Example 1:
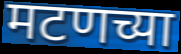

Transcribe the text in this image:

मटणच्या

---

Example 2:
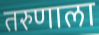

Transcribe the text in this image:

तरुणाला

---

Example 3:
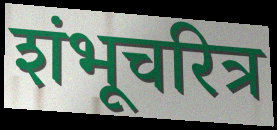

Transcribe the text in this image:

शंभूचरित्र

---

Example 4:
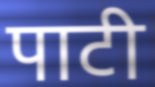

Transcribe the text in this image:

पाटी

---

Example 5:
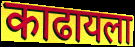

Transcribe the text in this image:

काढायला